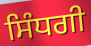
ਸਿੰਧਗੀ